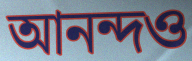
আনন্দও